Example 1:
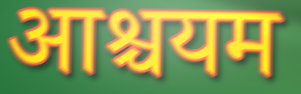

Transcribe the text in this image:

आश्चयम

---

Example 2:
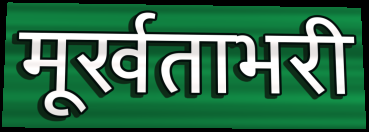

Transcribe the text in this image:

मूर्खताभरी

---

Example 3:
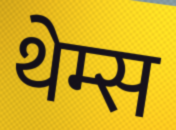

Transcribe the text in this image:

थेम्स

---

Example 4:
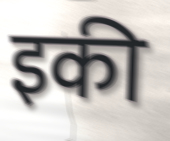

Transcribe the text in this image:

इकी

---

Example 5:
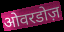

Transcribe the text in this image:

ओवरडोज़